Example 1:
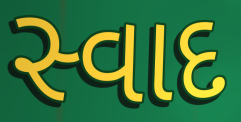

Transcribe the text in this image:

સ્વાદ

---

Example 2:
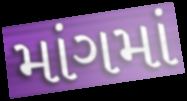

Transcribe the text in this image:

માંગમાં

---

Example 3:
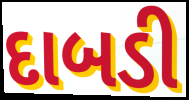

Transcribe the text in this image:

દાબડી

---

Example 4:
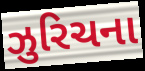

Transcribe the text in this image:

ઝુરિચના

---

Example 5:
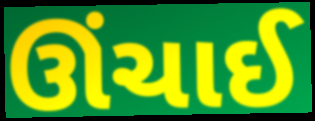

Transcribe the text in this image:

ઊંચાઈ